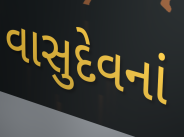
વાસુદેવનાં